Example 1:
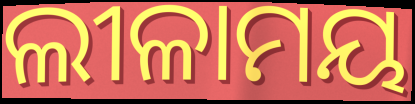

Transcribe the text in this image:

ଲୀଳାମୟ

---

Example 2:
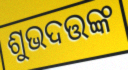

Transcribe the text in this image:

ଶୁଭଦତ୍ତଙ୍କ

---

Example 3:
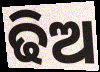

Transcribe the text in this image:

ଢିଅ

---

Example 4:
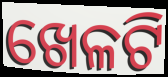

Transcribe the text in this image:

ଖେଳଟି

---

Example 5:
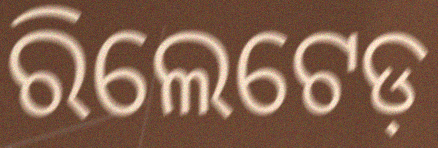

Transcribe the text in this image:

ରିଲେଟେଡ଼